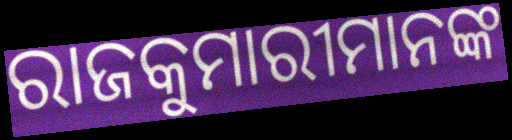
ରାଜକୁମାରୀମାନଙ୍କ